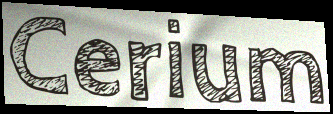
Cerium